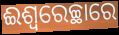
ଈଶ୍ୱରେଚ୍ଛାରେ